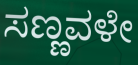
ಸಣ್ಣವಳೇ